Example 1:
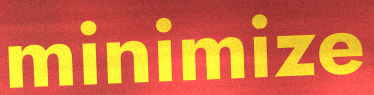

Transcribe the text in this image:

minimize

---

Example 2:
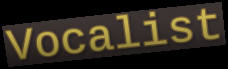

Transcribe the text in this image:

Vocalist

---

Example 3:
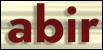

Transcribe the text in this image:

abir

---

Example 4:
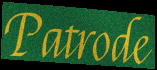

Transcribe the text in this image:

Patrode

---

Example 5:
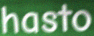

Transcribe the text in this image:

hasto